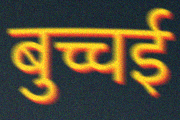
बुच्चई